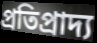
প্ৰতিপ্ৰাদ্য